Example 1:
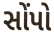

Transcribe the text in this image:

સોંપો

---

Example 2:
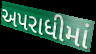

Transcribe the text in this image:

અપરાધીમાં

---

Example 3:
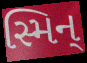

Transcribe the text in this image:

સ્મિન્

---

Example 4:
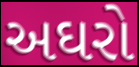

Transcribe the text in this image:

અઘરો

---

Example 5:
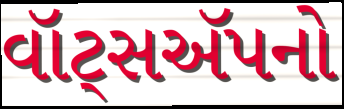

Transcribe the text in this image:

વૉટ્સઍપનો